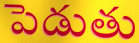
పెడుతు